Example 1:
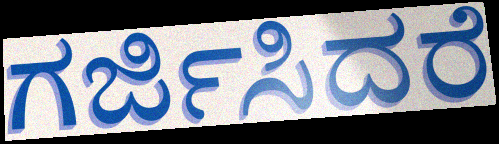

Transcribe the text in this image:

ಗರ್ಜಿಸಿದರೆ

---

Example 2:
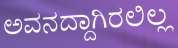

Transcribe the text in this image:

ಅವನದ್ದಾಗಿರಲಿಲ್ಲ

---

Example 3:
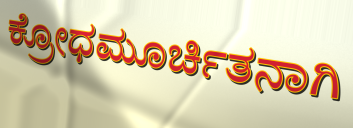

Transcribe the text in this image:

ಕ್ರೋಧಮೂರ್ಚಿತನಾಗಿ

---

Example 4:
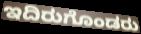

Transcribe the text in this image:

ಇದಿರುಗೊಂಡರು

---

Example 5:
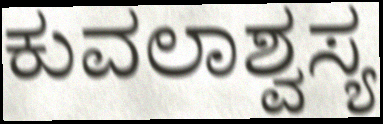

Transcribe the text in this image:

ಕುವಲಾಶ್ವಸ್ಯ